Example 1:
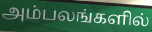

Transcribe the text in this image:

அம்பலங்களில்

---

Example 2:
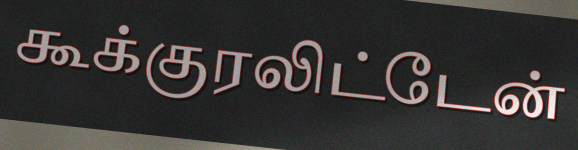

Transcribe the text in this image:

கூக்குரலிட்டேன்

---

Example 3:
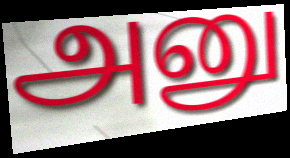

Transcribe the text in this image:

அனு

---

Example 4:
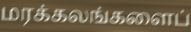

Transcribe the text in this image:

மரக்கலங்களைப்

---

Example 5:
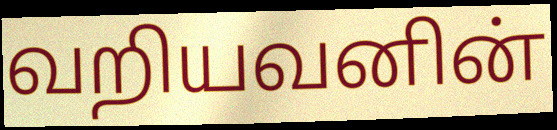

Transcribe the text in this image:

வறியவனின்